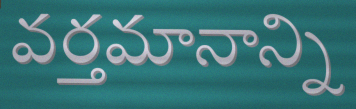
వర్తమానాన్ని